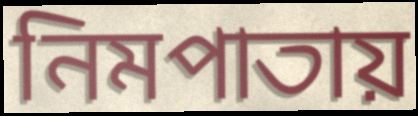
নিমপাতায়